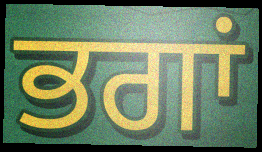
ਭਗਾਂ